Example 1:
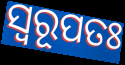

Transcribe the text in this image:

ସ୍ଵରୂପତଃ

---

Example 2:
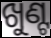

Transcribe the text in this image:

ଖୁଣ୍ଟ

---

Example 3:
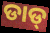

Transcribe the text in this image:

ଡାଡ୍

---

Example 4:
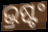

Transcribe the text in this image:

ଭ୍ରଷ୍ଟଂ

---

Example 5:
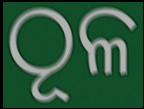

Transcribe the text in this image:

ଠୂଳ